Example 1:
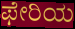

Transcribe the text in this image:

ಫೇರಿಯ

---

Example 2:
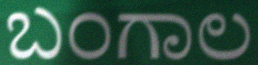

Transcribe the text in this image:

ಬಂಗಾಲ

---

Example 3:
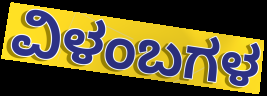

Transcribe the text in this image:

ವಿಳಂಬಗಳ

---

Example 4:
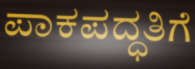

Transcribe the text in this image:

ಪಾಕಪದ್ಧತಿಗೆ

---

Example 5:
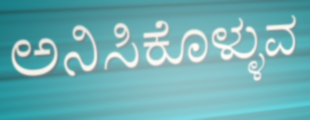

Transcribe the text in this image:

ಅನಿಸಿಕೊಳ್ಳುವ